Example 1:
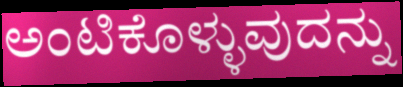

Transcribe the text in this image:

ಅಂಟಿಕೊಳ್ಳುವುದನ್ನು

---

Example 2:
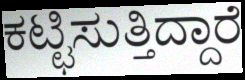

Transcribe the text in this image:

ಕಟ್ಟಿಸುತ್ತಿದ್ದಾರೆ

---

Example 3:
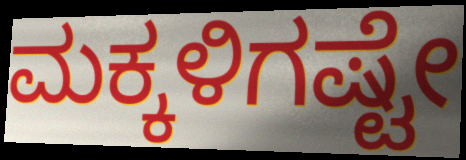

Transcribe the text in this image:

ಮಕ್ಕಳಿಗಷ್ಟೇ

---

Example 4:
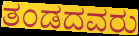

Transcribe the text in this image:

ತಂಡದವರು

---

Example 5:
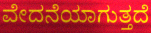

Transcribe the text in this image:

ವೇದನೆಯಾಗುತ್ತದೆ